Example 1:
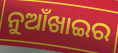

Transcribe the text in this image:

ନୁଆଁଖାଇର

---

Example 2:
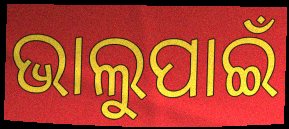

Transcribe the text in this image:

ଭାଲୁପାଇଁ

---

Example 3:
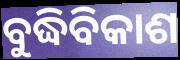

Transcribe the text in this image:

ବୁଦ୍ଧିବିକାଶ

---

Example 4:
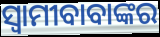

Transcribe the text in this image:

ସ୍ଵାମୀବାବାଙ୍କର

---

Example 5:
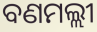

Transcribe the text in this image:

ବଣମଲ୍ଲୀ